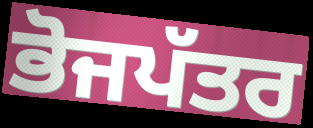
ਭੋਜਪੱਤਰ